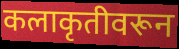
कलाकृतीवरून